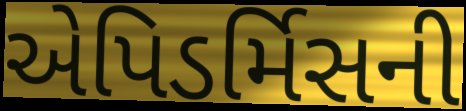
એપિડર્મિસની